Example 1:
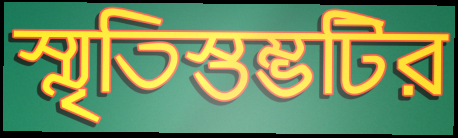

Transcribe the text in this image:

স্মৃতিস্তম্ভটির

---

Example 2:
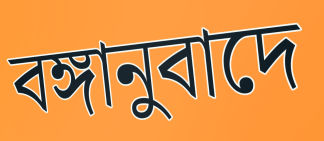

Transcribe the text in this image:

বঙ্গানুবাদে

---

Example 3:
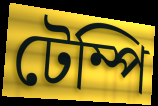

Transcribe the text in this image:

টেম্পি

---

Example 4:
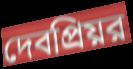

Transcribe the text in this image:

দেবপ্রিয়র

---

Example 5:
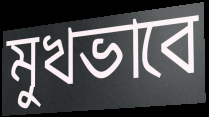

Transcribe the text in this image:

মুখভাবে